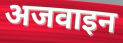
अजवाइन